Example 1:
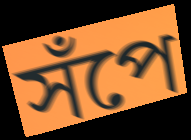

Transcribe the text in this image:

সঁপে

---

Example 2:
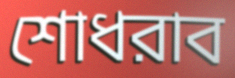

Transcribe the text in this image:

শোধরাব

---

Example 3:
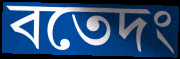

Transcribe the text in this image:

বতেদং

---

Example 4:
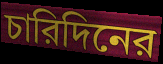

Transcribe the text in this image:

চারিদিনের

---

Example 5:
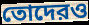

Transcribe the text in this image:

তোদেরও